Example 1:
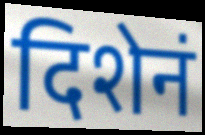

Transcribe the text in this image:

दिशेनं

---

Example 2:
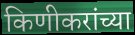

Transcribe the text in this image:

किणीकरांच्या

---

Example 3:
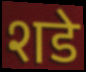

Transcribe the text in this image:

शडे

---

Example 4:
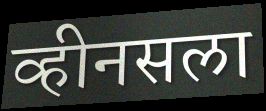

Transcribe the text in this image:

व्हीनसला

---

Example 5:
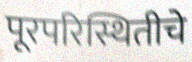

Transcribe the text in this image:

पूरपरिस्थितीचे